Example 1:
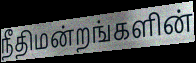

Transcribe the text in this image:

நீதிமன்றங்களின்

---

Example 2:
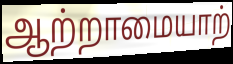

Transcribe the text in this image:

ஆற்றாமையாற்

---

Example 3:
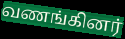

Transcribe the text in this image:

வணங்கினர்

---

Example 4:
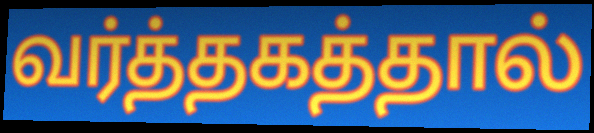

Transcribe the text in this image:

வர்த்தகத்தால்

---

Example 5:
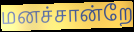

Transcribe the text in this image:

மனச்சான்றே